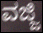
ವಜ್ಜಿ